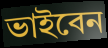
ভাইবেন